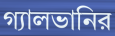
গ্যালভানির